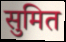
सुमित